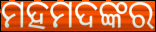
ମହମଦଙ୍କର